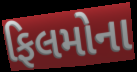
ફિલમોના